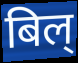
बिल्